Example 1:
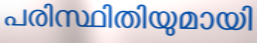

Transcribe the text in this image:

പരിസ്ഥിതിയുമായി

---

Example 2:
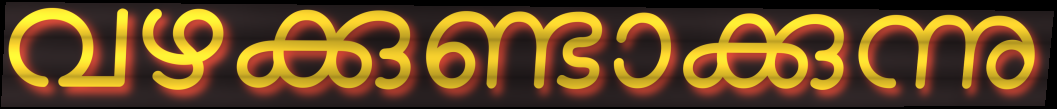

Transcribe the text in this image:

വഴക്കുണ്ടാക്കുന്നു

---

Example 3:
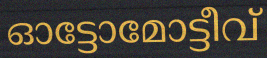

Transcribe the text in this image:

ഓട്ടോമോട്ടീവ്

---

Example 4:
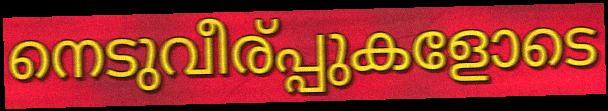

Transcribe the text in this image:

നെടുവീര്പ്പുകളോടെ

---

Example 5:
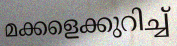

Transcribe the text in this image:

മക്കളെക്കുറിച്ച്